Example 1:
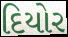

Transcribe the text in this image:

દિયોર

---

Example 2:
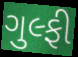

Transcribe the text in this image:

ગુલ્ફી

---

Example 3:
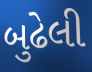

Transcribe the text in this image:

બુઢેલી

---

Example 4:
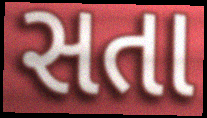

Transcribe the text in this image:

સતા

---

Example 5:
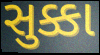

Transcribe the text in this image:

સુક્કા